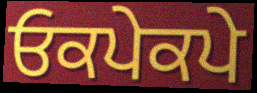
ਓਕਪੇਕਪੇ